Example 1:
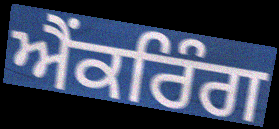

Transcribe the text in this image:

ਐਂਕਰਿੰਗ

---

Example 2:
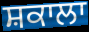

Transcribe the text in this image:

ਸ਼ਕਾਲਾ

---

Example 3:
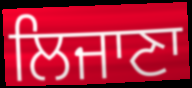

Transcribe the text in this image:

ਲਿਜਾਣਾ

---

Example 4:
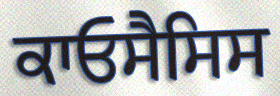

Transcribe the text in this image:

ਕਾਓਸੈਸਿਸ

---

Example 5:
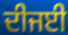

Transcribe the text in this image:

ਦੀਜਈ